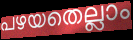
പഴയതെല്ലാം